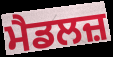
ਮੈਡਲਜ਼